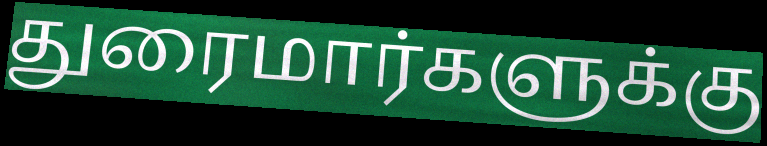
துரைமார்களுக்கு